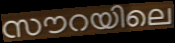
സൗറയിലെ